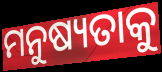
ମନୁଷ୍ୟତାକୁ